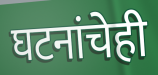
घटनांचेही